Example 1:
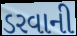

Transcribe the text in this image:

ડરવાની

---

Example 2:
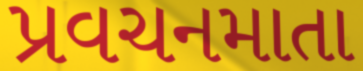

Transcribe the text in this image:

પ્રવચનમાતા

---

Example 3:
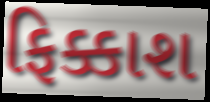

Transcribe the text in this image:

ફિક્કાશ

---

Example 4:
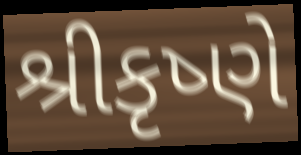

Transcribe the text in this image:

શ્રીકૃષ્ણે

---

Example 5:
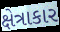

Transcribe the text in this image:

ક્ષેત્રાકાર